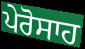
ਪੇਰੋਸਾਹ